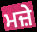
ਮਜ਼ੇ